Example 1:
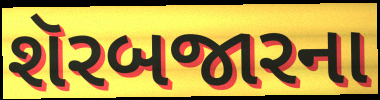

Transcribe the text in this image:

શૅરબજારના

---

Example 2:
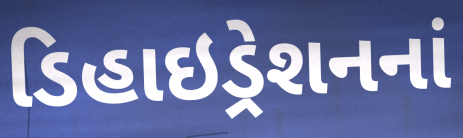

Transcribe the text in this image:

ડિહાઇડ્રેશનનાં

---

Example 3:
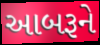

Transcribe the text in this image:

આબરૂને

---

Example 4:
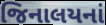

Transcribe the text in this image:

જિનાલયનાં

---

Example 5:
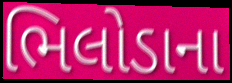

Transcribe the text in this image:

ભિલોડાના